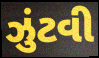
ઝુંટવી